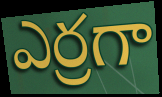
ఎర్రగా